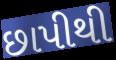
છાપીથી